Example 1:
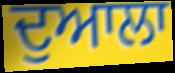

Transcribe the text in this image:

ਦੁਆਲਾ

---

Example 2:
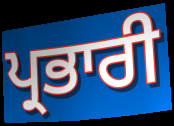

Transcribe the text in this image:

ਪ੍ਰਭਾਰੀ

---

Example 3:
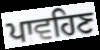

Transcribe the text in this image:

ਪਾਵਹਿਣ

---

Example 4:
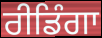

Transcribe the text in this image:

ਰੀਡਿੰਗਾ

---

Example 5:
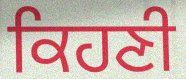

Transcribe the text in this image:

ਕਿਹਣੀ